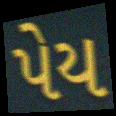
પેય